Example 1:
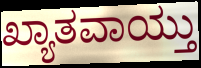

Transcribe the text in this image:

ಖ್ಯಾತವಾಯ್ತು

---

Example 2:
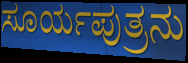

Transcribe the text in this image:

ಸೂರ್ಯಪುತ್ರನು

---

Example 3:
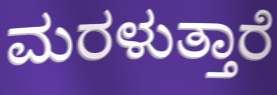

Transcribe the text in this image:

ಮರಳುತ್ತಾರೆ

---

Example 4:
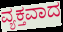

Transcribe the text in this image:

ವ್ಯಕ್ತವಾದ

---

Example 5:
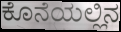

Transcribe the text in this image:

ಕೊನೆಯಲ್ಲಿನ